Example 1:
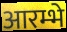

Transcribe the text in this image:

आरम्भे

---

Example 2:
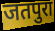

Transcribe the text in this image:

जतपुरा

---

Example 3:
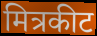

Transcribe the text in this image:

मित्रकीट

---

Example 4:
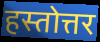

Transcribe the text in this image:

हस्तोत्तर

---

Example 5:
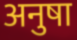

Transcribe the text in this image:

अनुषा